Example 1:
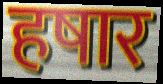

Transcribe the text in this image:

हषार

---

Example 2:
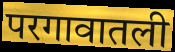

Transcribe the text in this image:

परगावातली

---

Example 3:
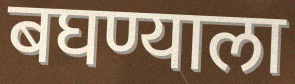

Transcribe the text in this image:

बघण्याला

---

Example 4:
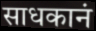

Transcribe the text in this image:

साधकानं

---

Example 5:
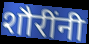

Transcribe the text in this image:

शौरींनी